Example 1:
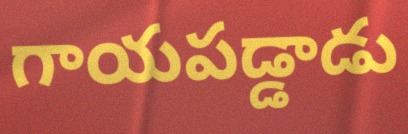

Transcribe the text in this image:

గాయపడ్డాడు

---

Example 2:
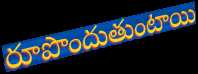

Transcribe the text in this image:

రూపొందుతుంటాయి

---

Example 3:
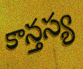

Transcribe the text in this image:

కాన్తస్య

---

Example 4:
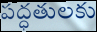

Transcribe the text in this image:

పద్ధతులకు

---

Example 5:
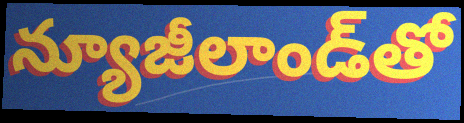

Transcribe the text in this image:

న్యూజీలాండ్‌తో